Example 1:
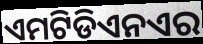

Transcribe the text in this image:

ଏମଟିଡିଏନଏର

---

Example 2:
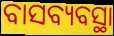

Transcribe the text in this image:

ବାସବ୍ୟବସ୍ଥା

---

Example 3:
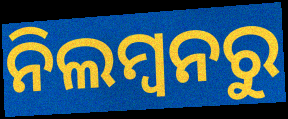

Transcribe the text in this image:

ନିଲମ୍ବନରୁ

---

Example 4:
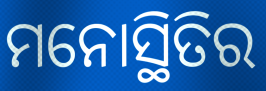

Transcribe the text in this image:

ମନୋସ୍ଥିତିର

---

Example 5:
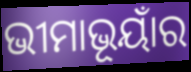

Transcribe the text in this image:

ଭୀମାଭୂୟାଁର